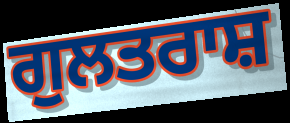
ਗੁਲਤਰਾਸ਼